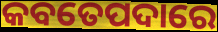
କବତେପଦାରେ